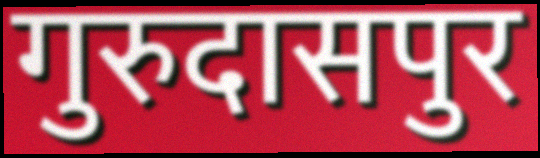
गुरुदासपुर